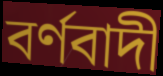
বর্ণবাদী